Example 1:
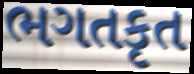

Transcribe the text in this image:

ભગતકૃત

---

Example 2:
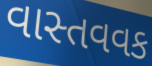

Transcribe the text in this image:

વાસ્તવવક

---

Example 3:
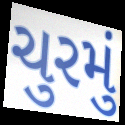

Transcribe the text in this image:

ચુરમું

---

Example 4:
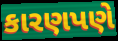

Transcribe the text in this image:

કારણપણે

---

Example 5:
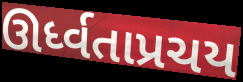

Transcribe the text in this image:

ઊર્ધ્વતાપ્રચય